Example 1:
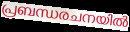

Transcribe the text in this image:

പ്രബന്ധരചനയിൽ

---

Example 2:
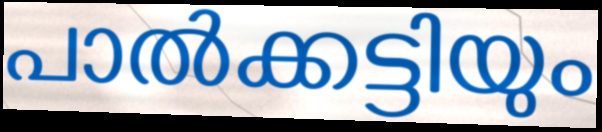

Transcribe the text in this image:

പാൽക്കട്ടിയും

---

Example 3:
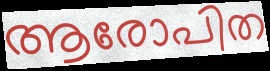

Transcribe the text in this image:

ആരോപിത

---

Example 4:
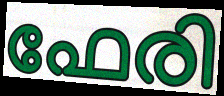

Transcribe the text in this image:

ഫേരി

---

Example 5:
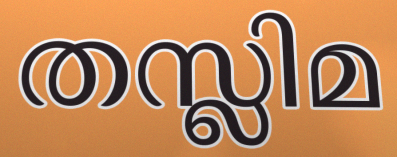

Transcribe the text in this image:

തസ്ലിമ